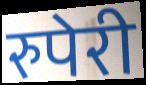
रुपेरी